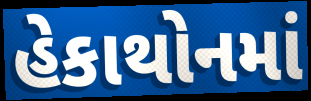
હેકાથોનમાં